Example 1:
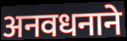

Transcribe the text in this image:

अनवधनाने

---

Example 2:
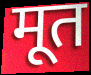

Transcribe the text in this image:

मूत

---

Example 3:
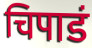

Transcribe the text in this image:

चिपाडं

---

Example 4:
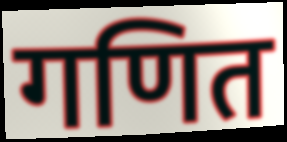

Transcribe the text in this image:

गणित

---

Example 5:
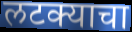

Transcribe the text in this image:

लटक्याचा